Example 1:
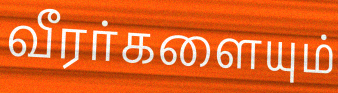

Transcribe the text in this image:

வீரர்களையும்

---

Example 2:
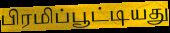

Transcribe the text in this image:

பிரமிப்பூட்டியது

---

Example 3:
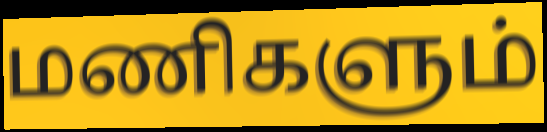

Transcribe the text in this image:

மணிகளும்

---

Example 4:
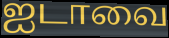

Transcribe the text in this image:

ஐடாவை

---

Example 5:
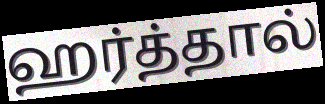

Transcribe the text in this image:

ஹர்த்தால்